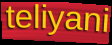
teliyani